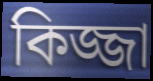
কিজ্জা